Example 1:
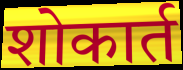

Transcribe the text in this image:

शोकार्त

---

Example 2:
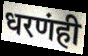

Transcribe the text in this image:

धरणंही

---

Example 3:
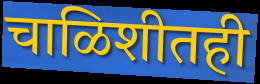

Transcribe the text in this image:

चाळिशीतही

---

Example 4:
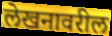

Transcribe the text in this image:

लेखनावरील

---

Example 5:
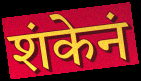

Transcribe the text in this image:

शंकेनं